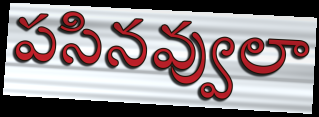
పసినవ్వులా